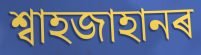
শ্বাহজাহানৰ